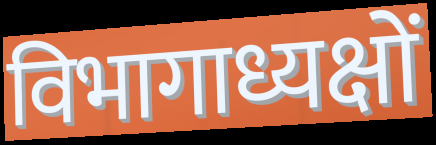
विभागाध्यक्षों